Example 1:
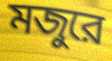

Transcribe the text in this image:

মজুরে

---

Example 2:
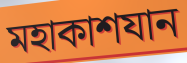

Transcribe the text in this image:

মহাকাশযান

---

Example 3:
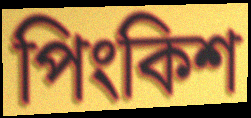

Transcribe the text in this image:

পিংকিশ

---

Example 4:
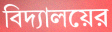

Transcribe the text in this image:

বিদ্যালয়ের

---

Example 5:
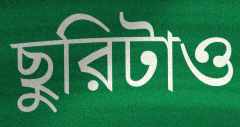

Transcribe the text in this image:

ছুরিটাও